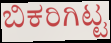
ಬಿಕರಿಗಿಟ್ಟ